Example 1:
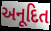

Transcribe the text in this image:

અનૂદિત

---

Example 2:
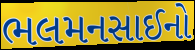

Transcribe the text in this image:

ભલમનસાઈનો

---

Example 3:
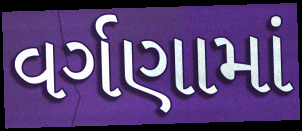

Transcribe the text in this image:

વર્ગણામાં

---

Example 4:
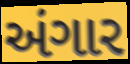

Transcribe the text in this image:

અંગાર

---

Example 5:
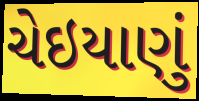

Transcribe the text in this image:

ચેઇયાણું